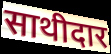
साथीदार